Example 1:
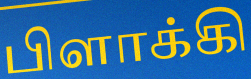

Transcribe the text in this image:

பிளாக்கி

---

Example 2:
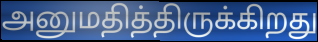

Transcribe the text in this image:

அனுமதித்திருக்கிறது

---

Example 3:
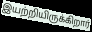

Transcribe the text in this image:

இயற்றியிருக்கிறார்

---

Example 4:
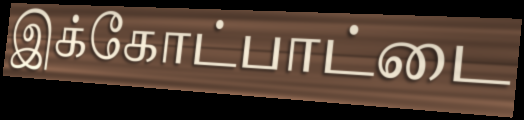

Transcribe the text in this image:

இக்கோட்பாட்டை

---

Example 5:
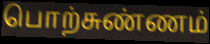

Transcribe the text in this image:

பொற்சுண்ணம்